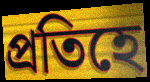
প্ৰতিহে